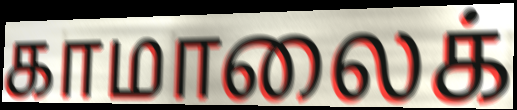
காமாலைக்